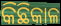
କିଛିକାଳ